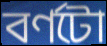
বৰ্ণটো